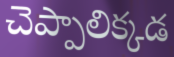
చెప్పాలిక్కడ